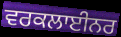
ਵਰਕਲਾਈਨਰ